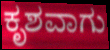
ಕೃಶವಾಗು